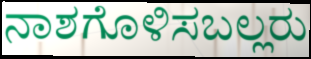
ನಾಶಗೊಳಿಸಬಲ್ಲರು